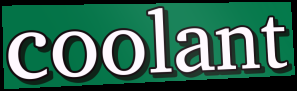
coolant